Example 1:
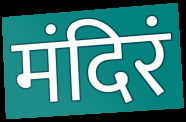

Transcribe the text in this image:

मंदिरं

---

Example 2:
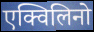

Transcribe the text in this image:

एक्विलिनो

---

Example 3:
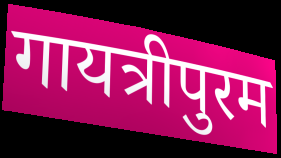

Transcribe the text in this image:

गायत्रीपुरम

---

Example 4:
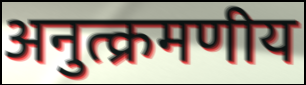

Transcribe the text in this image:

अनुत्क्रमणीय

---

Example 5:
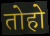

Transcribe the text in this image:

तोहो